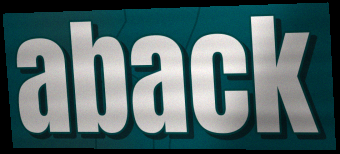
aback